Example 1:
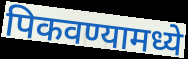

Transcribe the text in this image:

पिकवण्यामध्ये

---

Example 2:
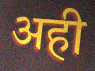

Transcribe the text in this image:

अही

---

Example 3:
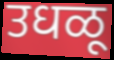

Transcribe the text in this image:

उधळू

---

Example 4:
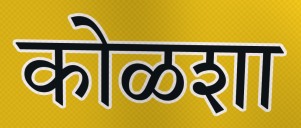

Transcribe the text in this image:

कोळशा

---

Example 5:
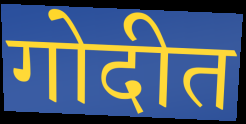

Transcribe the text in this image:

गोदीत